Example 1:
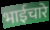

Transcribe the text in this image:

भाईचारे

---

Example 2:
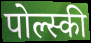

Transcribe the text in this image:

पोल्स्की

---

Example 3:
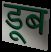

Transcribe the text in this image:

डूब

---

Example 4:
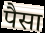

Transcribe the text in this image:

पैसा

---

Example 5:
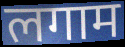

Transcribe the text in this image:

लगाम